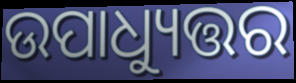
ଉପାଧ୍ୟୁତ୍ତର